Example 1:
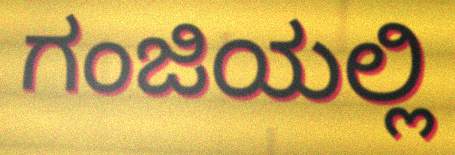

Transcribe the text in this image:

ಗಂಜಿಯಲ್ಲಿ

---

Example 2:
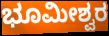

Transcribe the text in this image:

ಭೂಮೀಶ್ವರ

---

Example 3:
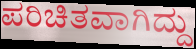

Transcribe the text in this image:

ಪರಿಚಿತವಾಗಿದ್ದು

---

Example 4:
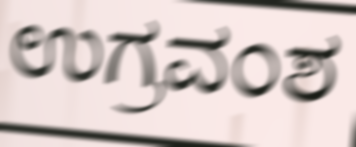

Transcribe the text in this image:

ಉಗ್ರವಂಶ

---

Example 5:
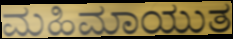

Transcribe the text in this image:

ಮಹಿಮಾಯುತ